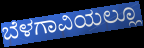
ಬೆಳಗಾವಿಯಲ್ಲೂ